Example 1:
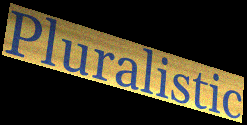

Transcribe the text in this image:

Pluralistic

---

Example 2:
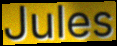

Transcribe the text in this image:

Jules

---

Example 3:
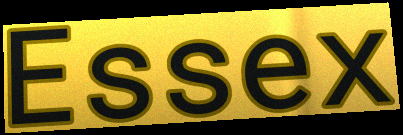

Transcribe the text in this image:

Essex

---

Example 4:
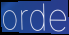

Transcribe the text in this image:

orde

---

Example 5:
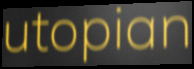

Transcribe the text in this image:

utopian